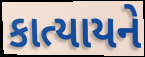
કાત્યાયને